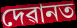
দেৱানত